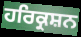
ਹਰਿਕ੍ਰਸ਼ਨ